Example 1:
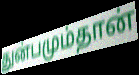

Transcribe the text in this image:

துன்பமும்தான்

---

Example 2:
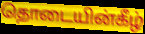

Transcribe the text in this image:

தொடையின்கீழ்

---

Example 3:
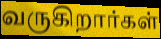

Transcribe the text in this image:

வருகிறார்கள்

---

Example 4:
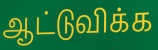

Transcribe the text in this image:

ஆட்டுவிக்க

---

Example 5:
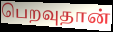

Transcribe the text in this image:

பெறவுதான்